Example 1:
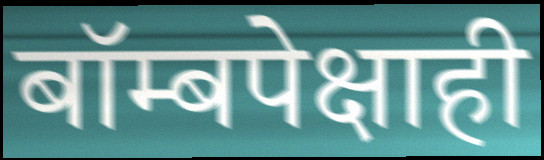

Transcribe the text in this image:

बॉम्बपेक्षाही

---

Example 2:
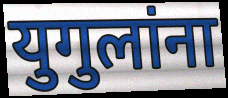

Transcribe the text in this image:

युगुलांना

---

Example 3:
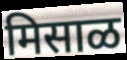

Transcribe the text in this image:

मिसाळ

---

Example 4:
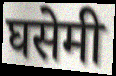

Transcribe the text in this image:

घसेमी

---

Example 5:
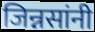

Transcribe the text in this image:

जिन्नसांनी